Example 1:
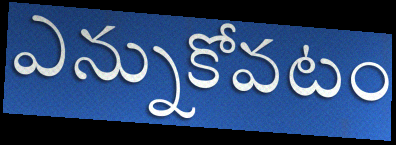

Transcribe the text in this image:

ఎన్నుకోవటం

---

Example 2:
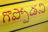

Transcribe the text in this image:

గొప్పోడని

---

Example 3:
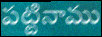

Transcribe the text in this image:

పట్టినాము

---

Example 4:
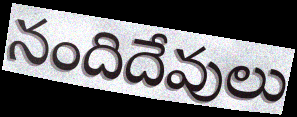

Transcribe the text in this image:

నందిదేవులు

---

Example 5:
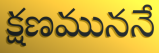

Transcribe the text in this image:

క్షణముననే